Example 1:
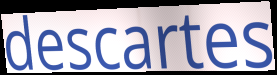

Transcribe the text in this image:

descartes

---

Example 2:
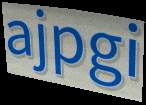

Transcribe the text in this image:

ajpgi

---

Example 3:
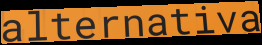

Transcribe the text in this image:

alternativa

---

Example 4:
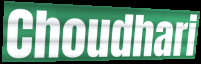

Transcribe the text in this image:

Choudhari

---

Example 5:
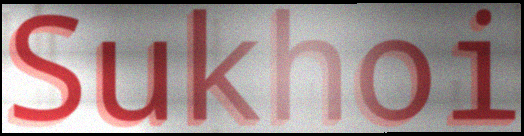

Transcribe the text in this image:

Sukhoi